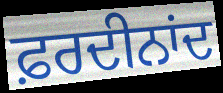
ਫ਼ਰਦੀਨਾਂਦ